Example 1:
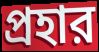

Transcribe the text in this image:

প্রহার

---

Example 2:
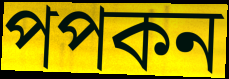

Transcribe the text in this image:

পপকন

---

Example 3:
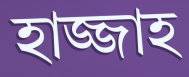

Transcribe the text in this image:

হাজ্জাহ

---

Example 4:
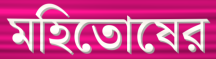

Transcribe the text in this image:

মহিতোষের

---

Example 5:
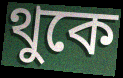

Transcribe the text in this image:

থুকে